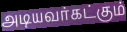
அடியவர்கட்கும்